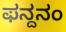
ಫನ್ದನಂ